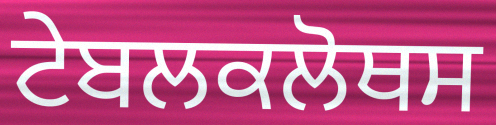
ਟੇਬਲਕਲੋਥਸ